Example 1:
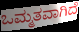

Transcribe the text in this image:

ಒಮ್ಮತವಾಗಿದೆ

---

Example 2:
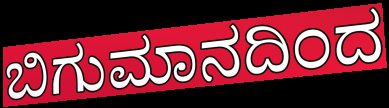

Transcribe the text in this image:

ಬಿಗುಮಾನದಿಂದ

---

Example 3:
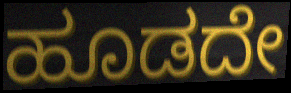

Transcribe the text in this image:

ಹೂಡದೇ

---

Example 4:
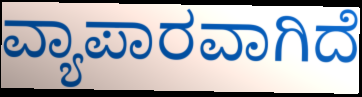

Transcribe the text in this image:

ವ್ಯಾಪಾರವಾಗಿದೆ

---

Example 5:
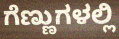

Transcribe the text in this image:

ಗೆಣ್ಣುಗಳಲ್ಲಿ